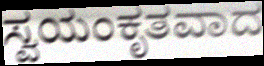
ಸ್ವಯಂಕೃತವಾದ